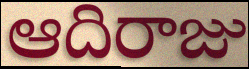
ఆదిరాజు